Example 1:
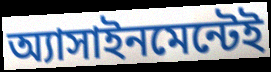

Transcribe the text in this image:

অ্যাসাইনমেন্টেই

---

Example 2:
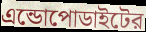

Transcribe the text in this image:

এন্ডোপোডাইটের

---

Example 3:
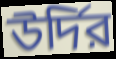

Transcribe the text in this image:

উর্দির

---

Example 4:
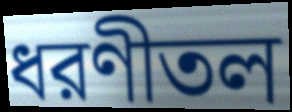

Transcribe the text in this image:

ধরণীতল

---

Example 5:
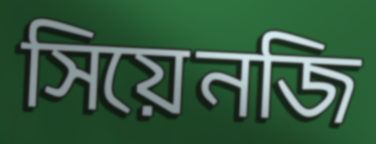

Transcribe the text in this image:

সিয়েনজি